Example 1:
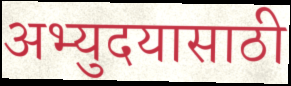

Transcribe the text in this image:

अभ्युदयासाठी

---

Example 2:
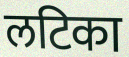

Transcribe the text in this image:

लटिका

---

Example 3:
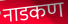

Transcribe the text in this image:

नाडकण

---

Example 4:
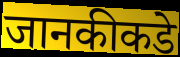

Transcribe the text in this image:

जानकीकडे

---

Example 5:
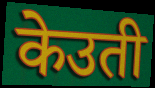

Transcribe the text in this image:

केउती